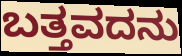
ಬತ್ತವದನು